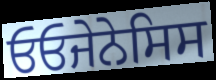
ਓਓਜੇਨੇਸਿਸ